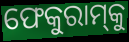
ଫେକୁରାମ୍‌କୁ